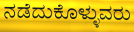
ನಡೆದುಕೊಳ್ಳುವರು